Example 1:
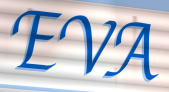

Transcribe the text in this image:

EVA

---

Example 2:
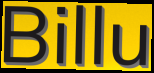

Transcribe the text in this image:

Billu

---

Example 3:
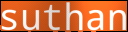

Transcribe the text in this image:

suthan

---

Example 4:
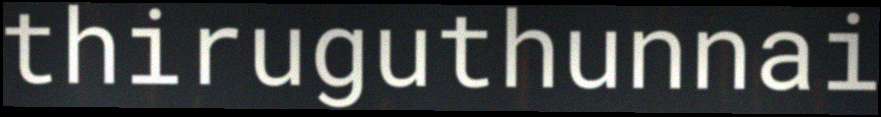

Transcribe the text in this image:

thiruguthunnai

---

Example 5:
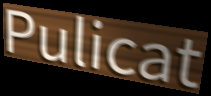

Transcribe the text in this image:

Pulicat